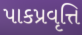
પાકપ્રવૃત્તિ